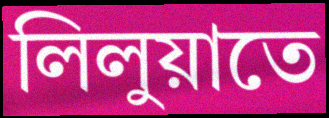
লিলুয়াতে